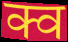
क्व